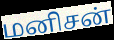
மனிசன்